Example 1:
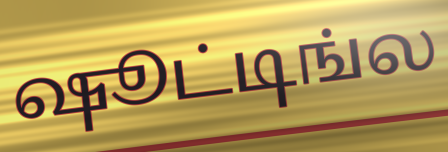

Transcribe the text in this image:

ஷூட்டிங்ல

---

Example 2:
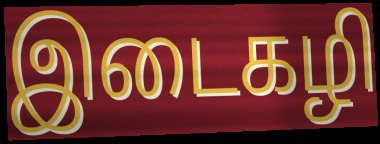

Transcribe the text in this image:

இடைகழி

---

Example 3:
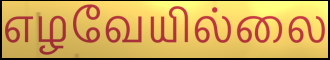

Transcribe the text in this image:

எழவேயில்லை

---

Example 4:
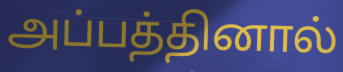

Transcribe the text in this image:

அப்பத்தினால்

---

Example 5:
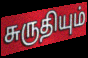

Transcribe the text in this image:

சுருதியும்